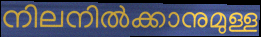
നിലനിൽക്കാനുമുള്ള